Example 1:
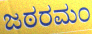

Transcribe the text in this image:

ಜಠರಮಂ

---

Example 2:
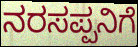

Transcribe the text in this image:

ನರಸಪ್ಪನಿಗೆ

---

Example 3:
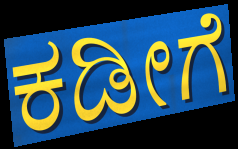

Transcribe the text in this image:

ಕಡೀಗೆ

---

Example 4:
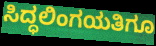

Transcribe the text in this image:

ಸಿದ್ಧಲಿಂಗಯತಿಗೂ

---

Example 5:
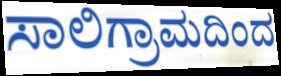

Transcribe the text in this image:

ಸಾಲಿಗ್ರಾಮದಿಂದ